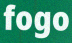
fogo